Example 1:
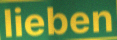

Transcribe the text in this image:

lieben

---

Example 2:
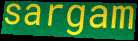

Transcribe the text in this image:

sargam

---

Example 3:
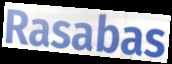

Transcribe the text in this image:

Rasabas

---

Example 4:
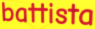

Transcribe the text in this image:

battista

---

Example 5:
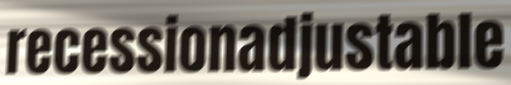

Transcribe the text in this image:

recessionadjustable